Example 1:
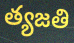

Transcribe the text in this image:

త్యజతి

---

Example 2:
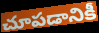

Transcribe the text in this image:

చూపడానికీ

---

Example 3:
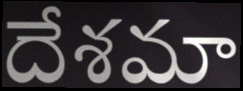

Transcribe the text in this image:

దేశమా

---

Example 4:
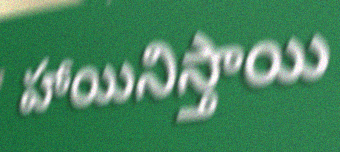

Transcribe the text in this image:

హాయినిస్తాయి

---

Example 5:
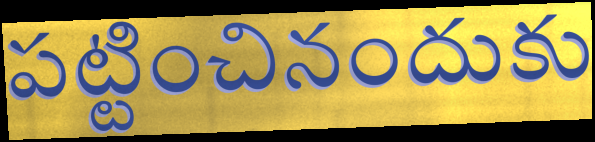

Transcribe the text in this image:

పట్టించినందుకు